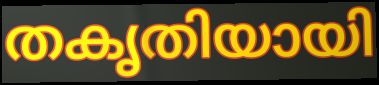
തകൃതിയായി